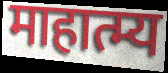
माहात्म्य